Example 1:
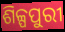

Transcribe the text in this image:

ଶିଳ୍ପପୁରୀ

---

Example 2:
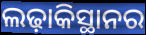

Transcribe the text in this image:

ଲଢ଼ାକିସ୍ଥାନର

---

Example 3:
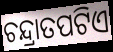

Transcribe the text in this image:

ଚନ୍ଦ୍ରାତପଟିଏ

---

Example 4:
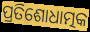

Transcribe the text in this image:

ପ୍ରତିଶୋଧାତ୍ମକ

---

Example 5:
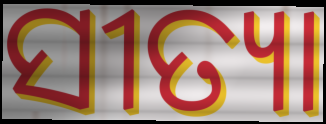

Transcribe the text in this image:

ସୀତ୍ୟା